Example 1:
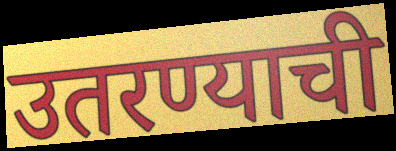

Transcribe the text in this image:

उतरण्याची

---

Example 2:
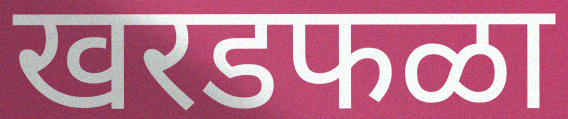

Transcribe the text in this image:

खरडफळा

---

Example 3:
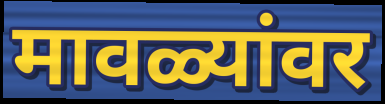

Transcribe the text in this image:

मावळ्यांवर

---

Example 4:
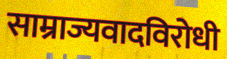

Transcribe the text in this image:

साम्राज्यवादविरोधी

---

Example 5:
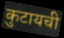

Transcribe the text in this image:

कुटायची